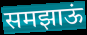
समझाऊं